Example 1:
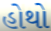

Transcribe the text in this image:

હોથો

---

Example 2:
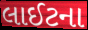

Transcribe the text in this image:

લાઈટના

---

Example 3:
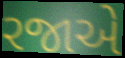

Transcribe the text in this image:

રજાએ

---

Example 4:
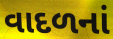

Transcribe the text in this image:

વાદળનાં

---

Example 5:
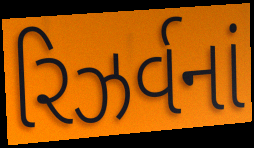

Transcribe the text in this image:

રિઝર્વનાં